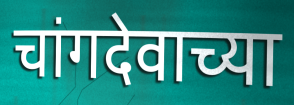
चांगदेवाच्या